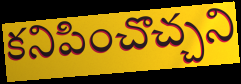
కనిపించొచ్చని